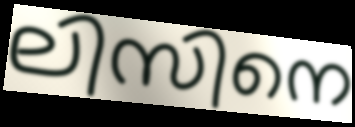
ലിസിനെ